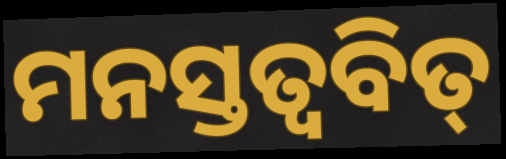
ମନସ୍ତତ୍ୱବିତ୍